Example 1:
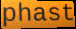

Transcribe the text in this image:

phast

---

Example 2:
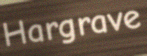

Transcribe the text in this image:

Hargrave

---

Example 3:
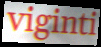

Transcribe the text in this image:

viginti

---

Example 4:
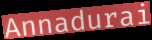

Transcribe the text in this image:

Annadurai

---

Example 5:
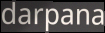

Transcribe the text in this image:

darpana